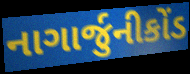
નાગાર્જુનીકોંડ